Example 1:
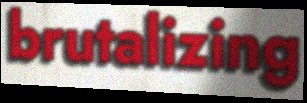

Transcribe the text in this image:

brutalizing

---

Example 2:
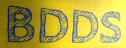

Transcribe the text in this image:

BDDS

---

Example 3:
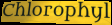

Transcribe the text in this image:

Chlorophyl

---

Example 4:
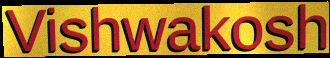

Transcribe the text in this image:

Vishwakosh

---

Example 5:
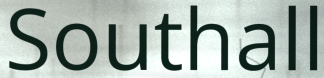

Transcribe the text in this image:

Southall